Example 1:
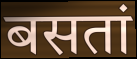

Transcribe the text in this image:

बसतां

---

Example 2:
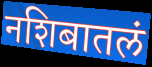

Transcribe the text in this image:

नशिबातलं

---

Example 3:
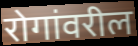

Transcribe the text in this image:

रोगांवरील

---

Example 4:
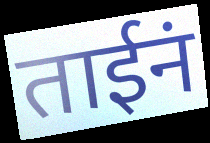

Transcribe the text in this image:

ताईनं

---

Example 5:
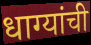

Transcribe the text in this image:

धाग्यांची